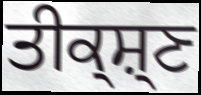
ਤੀਕ੍ਸ਼੍ਣ